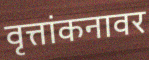
वृत्तांकनावर